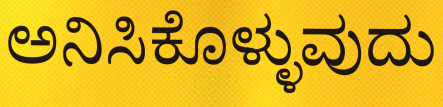
ಅನಿಸಿಕೊಳ್ಳುವುದು